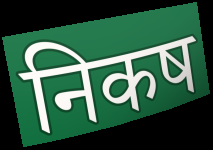
निकष